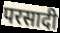
परसादी